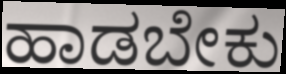
ಹಾಡಬೇಕು